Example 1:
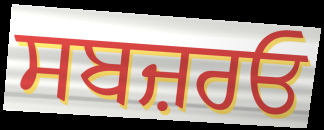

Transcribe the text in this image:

ਸਬਜ਼ਰਓ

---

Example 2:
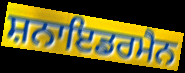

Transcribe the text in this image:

ਸ਼ਨਾਇਡਰਮੈਨ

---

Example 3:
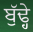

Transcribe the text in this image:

ਬੁੱਢ੍ਹੇ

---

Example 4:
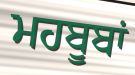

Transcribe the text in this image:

ਮਹਬੂਬਾਂ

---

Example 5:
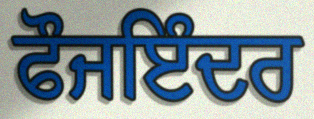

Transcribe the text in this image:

ਫੌਜਇੰਦਰ